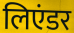
लिएंडर